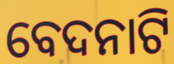
ବେଦନାଟି